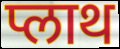
प्लाथ